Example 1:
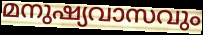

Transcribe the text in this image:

മനുഷ്യവാസവും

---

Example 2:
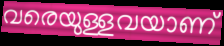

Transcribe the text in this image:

വരെയുള്ളവയാണ്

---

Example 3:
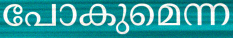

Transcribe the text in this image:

പോകുമെന്ന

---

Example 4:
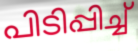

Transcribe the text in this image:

പിടിപ്പിച്ച്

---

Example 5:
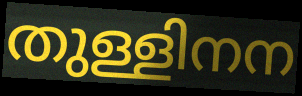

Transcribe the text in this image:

തുള്ളിനന